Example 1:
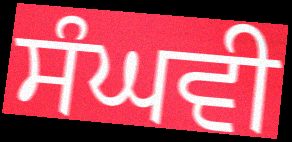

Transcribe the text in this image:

ਸੰਘਵੀ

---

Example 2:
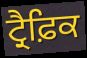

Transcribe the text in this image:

ਟ੍ਰੈਫ਼ਿਕ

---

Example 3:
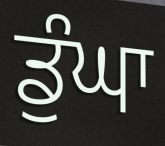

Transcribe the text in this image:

ਡੁੰਘਾ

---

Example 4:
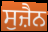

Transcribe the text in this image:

ਸੁਜ਼ੈਨ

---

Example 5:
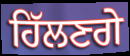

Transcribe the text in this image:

ਹਿੱਲਣਗੇ